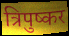
त्रिपुष्कर